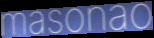
masonao